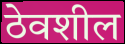
ठेवशील